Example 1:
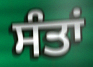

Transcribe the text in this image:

ਸੰਤਾਂ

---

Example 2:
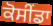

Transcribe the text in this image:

ਕੋਸੀਂਡਾ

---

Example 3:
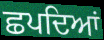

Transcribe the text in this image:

ਛਪਦਿਆਂ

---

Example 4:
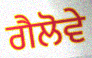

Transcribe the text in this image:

ਗੈਲੋਵੇ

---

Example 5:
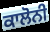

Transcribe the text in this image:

ਕਾਲੋਨੀ